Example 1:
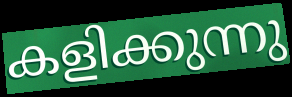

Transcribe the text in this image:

കളിക്കുന്നു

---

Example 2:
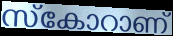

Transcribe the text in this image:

സ്‌കോറാണ്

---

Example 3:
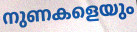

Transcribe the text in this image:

നുണകളെയും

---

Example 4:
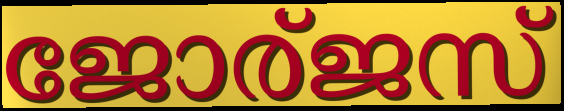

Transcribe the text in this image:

ജോര്ജസ്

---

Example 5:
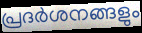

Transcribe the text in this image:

പ്രദർശനങ്ങളും